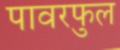
पावरफुल